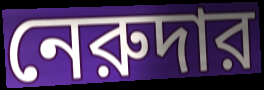
নেরুদার